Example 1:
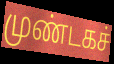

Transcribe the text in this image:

முண்டகச்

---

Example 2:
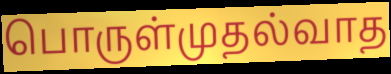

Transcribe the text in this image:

பொருள்முதல்வாத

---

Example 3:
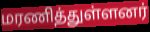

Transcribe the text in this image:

மரணித்துள்ளனர்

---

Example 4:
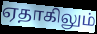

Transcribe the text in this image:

ஏதாகிலும்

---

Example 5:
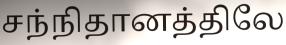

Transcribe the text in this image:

சந்நிதானத்திலே